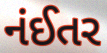
નંઈતર